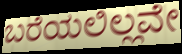
ಬರೆಯಲಿಲ್ಲವೇ